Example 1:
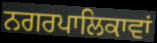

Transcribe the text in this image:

ਨਗਰਪਾਲਿਕਾਵਾਂ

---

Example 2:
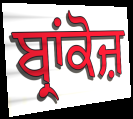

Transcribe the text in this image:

ਬ੍ਰਾਂਕੋਜ਼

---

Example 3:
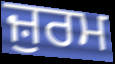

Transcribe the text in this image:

ਜ਼ੁਰਮ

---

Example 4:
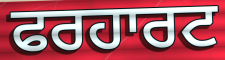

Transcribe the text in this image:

ਫਰਹਾਰਟ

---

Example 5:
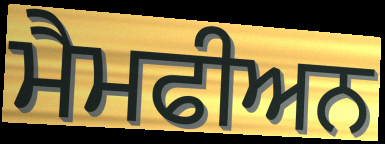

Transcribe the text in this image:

ਮੈਮਫੀਅਨ